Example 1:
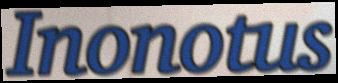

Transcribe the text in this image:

Inonotus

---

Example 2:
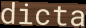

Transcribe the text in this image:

dicta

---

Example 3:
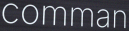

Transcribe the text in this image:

comman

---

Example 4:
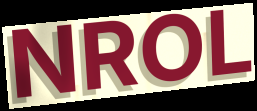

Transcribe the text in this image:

NROL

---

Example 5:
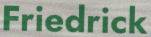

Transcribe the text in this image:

Friedrick